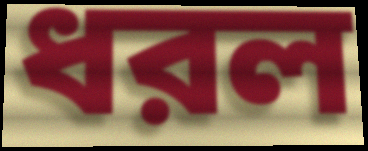
ধরল